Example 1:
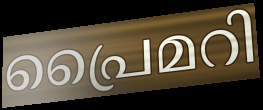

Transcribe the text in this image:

പ്രൈമറി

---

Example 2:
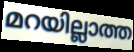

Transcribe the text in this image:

മറയില്ലാത്ത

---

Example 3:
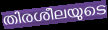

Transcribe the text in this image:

തിരശീലയുടെ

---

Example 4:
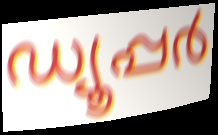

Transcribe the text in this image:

ഡ്യൂപ്പർ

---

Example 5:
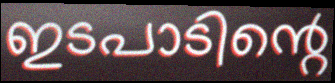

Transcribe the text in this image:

ഇടപാടിന്റെ